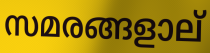
സമരങ്ങളാല്